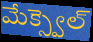
మేక్స్వెల్